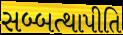
સબ્બત્થાપીતિ